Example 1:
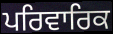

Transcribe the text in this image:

ਪਰਿਵਾਰਿਕ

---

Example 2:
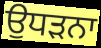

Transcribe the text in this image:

ਉਧੜਨਾ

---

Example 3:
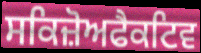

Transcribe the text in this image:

ਸਕਿਜ਼ੋਅਫੈਕਟਿਵ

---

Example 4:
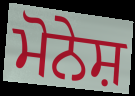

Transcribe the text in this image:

ਮੋਨੇਸ਼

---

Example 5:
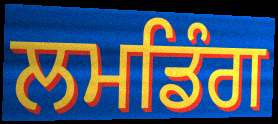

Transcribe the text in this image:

ਲਮਡਿੰਗ